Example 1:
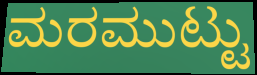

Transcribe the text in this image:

ಮರಮುಟ್ಟು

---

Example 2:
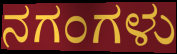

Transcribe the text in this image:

ನಗಂಗಳು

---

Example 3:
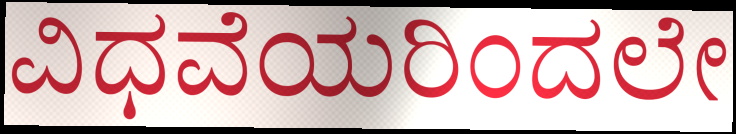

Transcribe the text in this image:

ವಿಧವೆಯರಿಂದಲೇ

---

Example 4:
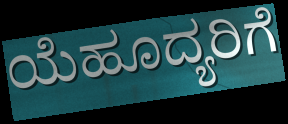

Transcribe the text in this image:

ಯೆಹೂದ್ಯರಿಗೆ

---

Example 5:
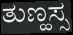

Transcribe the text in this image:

ತುಣ್ಹಸ್ಸ